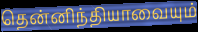
தென்னிந்தியாவையும்